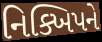
નિક્ખિપને